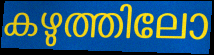
കഴുത്തിലോ